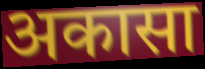
अकासा